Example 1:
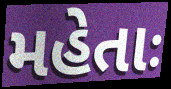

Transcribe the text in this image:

મહેતાઃ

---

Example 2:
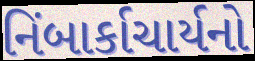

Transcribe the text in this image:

નિંબાર્કાચાર્યનો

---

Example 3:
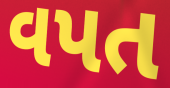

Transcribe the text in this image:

વપત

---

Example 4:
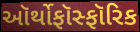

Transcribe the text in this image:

ઑર્થોફૉસ્ફૉરિક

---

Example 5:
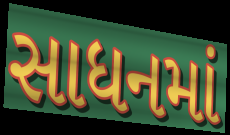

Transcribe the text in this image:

સાધનમાં